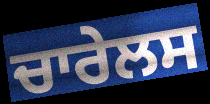
ਚਾਰੇਲਸ